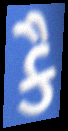
કૈ